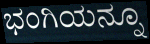
ಭಂಗಿಯನ್ನೂ